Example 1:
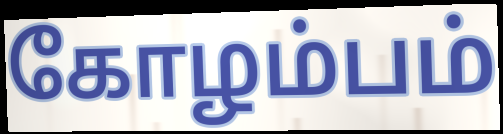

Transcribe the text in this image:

கோழம்பம்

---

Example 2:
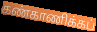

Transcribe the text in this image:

கண்காணிக்கப்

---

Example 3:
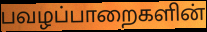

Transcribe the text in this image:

பவழப்பாறைகளின்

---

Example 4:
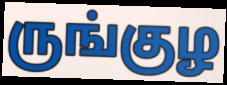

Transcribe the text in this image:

ருங்குழ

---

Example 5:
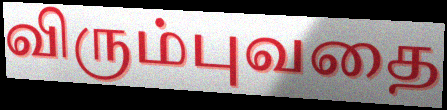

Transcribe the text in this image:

விரும்புவதை